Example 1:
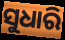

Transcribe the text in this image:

ସୁଧାରି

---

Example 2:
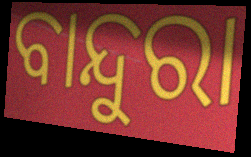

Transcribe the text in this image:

ବାନ୍ଦୁରା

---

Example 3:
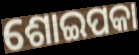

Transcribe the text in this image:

ଶୋଇପକା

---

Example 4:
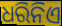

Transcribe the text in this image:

ଧରିନିଏ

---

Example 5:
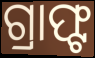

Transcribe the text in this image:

ଗ୍ରାଫ୍ଟ